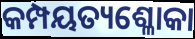
କମ୍ପୟତ୍ୟଶ୍ଳୋକା